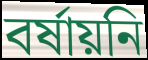
বর্ষায়নি